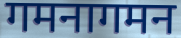
गमनागमन